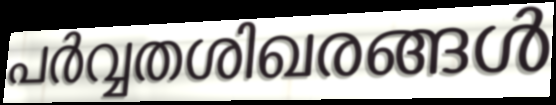
പർവ്വതശിഖരങ്ങൾ